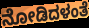
ನೋಡಿದಳಂತೆ